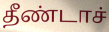
தீண்டாச்